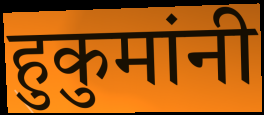
हुकुमांनी